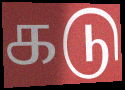
கடு